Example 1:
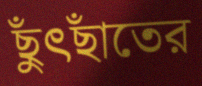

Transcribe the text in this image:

ছুঁৎছাঁতের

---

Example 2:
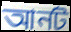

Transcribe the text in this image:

আর্নট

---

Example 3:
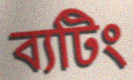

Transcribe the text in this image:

ব্যটিং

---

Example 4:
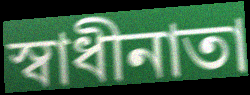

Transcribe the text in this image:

স্বাধীনাতা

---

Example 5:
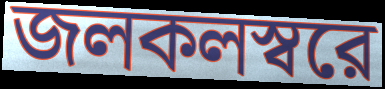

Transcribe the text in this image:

জলকলস্বরে